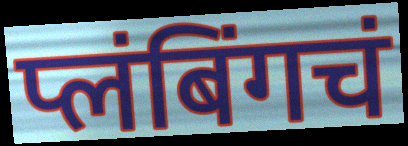
प्लंबिंगचं